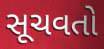
સૂચવતો